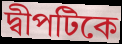
দ্বীপটিকে